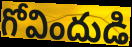
గోవిందుడి